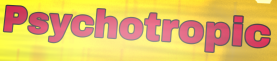
Psychotropic